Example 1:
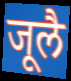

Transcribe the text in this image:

जूलै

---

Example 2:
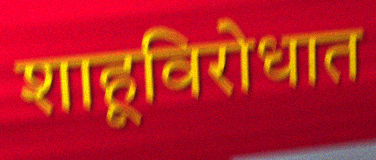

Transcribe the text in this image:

शाहूविरोधात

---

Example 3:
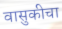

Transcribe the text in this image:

वासुकीचा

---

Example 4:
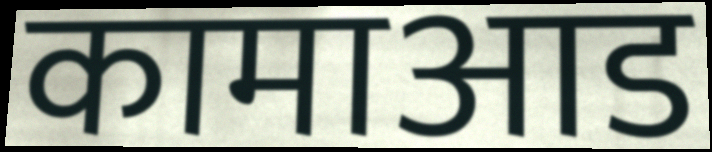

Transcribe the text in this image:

कामाआड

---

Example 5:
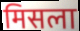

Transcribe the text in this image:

मिसला